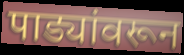
पाड्यांवरून